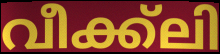
വീക്ക്ലി